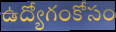
ఉద్యోగంకోసం